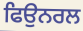
ਫਿਉਨਰਲ